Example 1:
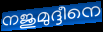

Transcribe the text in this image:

നജുമുദ്ദീനെ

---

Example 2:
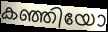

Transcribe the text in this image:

കഞ്ഞിയോ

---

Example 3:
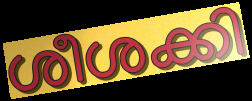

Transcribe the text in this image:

ശീശക്കി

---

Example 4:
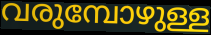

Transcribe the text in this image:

വരുമ്പോഴുള്ള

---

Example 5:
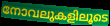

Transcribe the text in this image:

നോവലുകളിലൂടെ